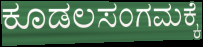
ಕೂಡಲಸಂಗಮಕ್ಕೆ